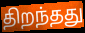
திறந்தது